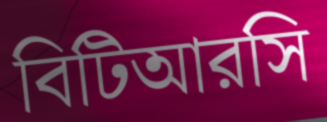
বিটিআরসি